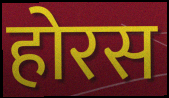
होरस